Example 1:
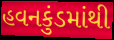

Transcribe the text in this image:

હવનકુંડમાંથી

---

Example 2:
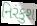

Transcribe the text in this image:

નિરંકુશ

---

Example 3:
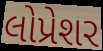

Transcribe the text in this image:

લોપ્રેશર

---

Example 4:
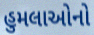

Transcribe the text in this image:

હુમલાઓનો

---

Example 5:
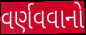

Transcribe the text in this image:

વર્ણવવાનો